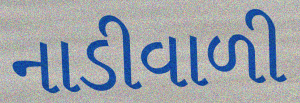
નાડીવાળી